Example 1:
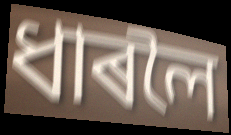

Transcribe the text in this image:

ধাৰলৈ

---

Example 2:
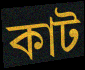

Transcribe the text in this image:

কাট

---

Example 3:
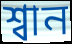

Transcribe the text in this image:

শ্বান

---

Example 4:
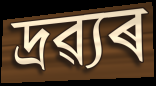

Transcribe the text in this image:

দ্ৰৱ্যৰ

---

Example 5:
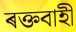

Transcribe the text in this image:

ৰক্তবাহী